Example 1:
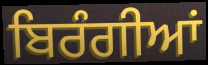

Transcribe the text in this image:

ਬਿਰੰਗੀਆਂ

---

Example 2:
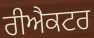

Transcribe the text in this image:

ਰੀਐਕਟਰ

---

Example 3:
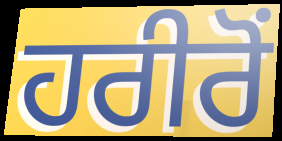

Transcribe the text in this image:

ਹਰੀਰੋਂ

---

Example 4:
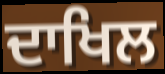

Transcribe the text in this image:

ਦਾਖਿਲ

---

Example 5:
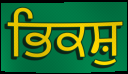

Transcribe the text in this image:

ਭਿਕਸ਼ੁ